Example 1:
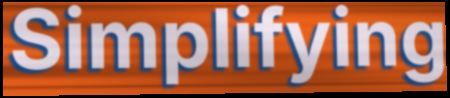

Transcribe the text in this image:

Simplifying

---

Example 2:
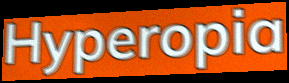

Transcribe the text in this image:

Hyperopia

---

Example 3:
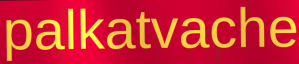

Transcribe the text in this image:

palkatvache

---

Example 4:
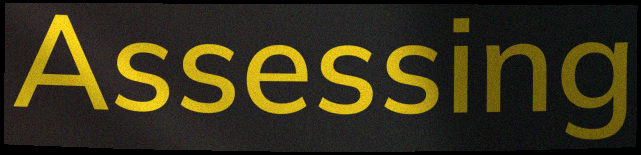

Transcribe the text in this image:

Assessing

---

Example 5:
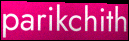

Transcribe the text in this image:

parikchith